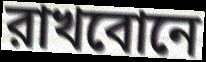
রাখবোনে